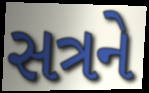
સત્રને